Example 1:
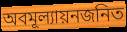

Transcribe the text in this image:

অবমূল্যায়নজনিত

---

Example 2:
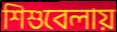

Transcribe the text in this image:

শিশুবেলায়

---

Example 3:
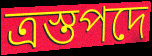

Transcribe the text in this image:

ত্রস্তপদে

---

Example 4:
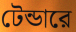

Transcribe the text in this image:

টেন্ডারে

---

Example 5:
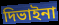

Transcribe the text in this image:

দিভাইনা